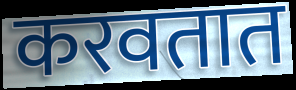
करवतात